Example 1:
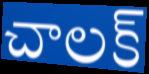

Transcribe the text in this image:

చాలక్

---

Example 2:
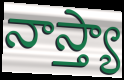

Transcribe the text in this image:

నాస్త్యా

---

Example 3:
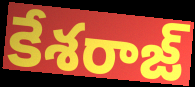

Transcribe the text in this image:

కేశరాజ్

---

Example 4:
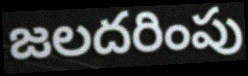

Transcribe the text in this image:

జలదరింపు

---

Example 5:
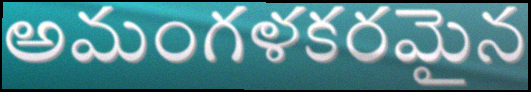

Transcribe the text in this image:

అమంగళకరమైన